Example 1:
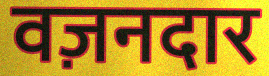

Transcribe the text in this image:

वज़नदार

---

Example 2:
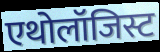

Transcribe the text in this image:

एथोलॉजिस्ट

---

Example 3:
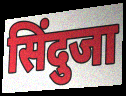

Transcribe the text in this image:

सिंदुजा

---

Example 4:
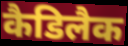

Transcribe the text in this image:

कैडिलैक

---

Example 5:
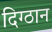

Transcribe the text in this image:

दिग्ठान